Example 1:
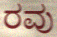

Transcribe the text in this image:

ರವು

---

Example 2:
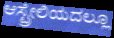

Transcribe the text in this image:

ಆಸ್ಟ್ರೇಲಿಯದಲ್ಲೂ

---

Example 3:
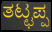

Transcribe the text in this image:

ತಟ್ಟಪ್ಪ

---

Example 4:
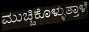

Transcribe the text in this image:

ಮುಚ್ಚಿಕೊಳ್ಳುತ್ತಾಳೆ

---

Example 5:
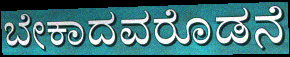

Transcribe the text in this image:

ಬೇಕಾದವರೊಡನೆ